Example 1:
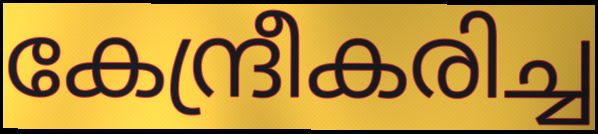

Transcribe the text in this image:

കേന്ദ്രീകരിച്ച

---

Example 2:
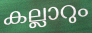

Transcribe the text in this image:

കല്ലാറും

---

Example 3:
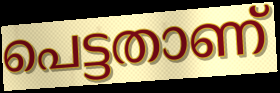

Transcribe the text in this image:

പെട്ടതാണ്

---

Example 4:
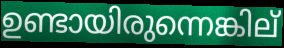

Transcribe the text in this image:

ഉണ്ടായിരുന്നെങ്കില്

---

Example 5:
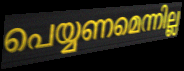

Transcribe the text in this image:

പെയ്യണമെന്നില്ല